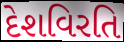
દેશવિરતિ